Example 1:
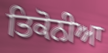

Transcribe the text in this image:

ਤਿਕੋਨੀਆ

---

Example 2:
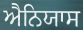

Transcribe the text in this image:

ਐਨਿਯਾਸ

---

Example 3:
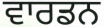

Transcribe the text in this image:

ਵਾਰਡਨ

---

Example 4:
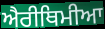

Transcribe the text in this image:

ਐਰੀਥਿਮੀਆ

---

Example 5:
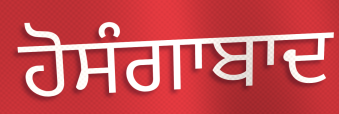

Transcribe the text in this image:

ਹੋਸੰਗਾਬਾਦ